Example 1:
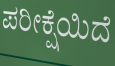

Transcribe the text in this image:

ಪರೀಕ್ಷೆಯಿದೆ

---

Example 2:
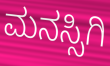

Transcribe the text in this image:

ಮನಸ್ಸಿಗಿ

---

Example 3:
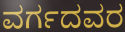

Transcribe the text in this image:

ವರ್ಗದವರ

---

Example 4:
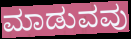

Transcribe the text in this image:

ಮಾಡುವವು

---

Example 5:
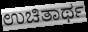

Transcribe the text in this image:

ಉಚಿತಾರ್ಥ